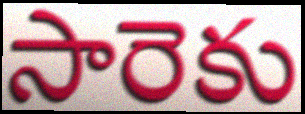
సారెకు